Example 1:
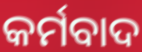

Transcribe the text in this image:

କର୍ମବାଦ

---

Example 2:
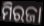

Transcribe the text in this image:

ମିରଜା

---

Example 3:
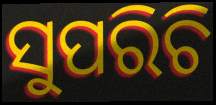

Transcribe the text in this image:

ସୁପରିଚି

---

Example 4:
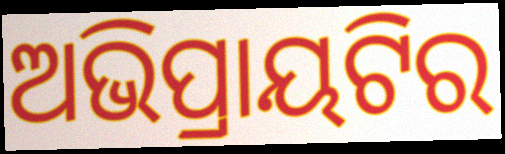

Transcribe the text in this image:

ଅଭିପ୍ରାୟଟିର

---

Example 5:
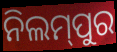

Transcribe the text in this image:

ନିଲମ୍‍ପୁର